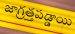
జాగ్రత్తపడ్డాయి